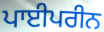
ਪਾਈਪਰੀਨ